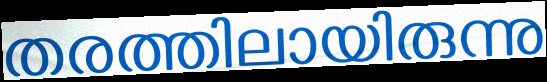
തരത്തിലായിരുന്നു